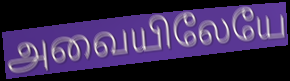
அவையிலேயே